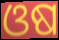
ଓଷ